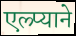
एल्प्याने